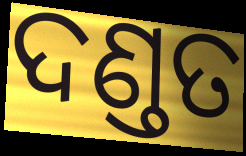
ଦଣ୍ଡତ